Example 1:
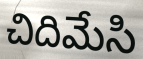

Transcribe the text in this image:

చిదిమేసి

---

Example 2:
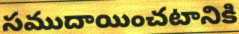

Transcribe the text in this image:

సముదాయించటానికి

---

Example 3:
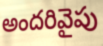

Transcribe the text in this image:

అందరివైపు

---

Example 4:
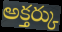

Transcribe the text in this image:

అక్తర్కు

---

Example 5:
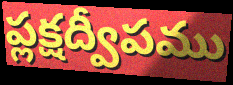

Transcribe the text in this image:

ప్లక్షద్వీపము